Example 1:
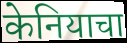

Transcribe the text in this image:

केनियाचा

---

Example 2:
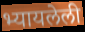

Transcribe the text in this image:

भ्यायलेली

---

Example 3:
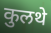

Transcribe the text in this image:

कुलथे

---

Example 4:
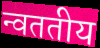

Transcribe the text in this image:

न्वततीय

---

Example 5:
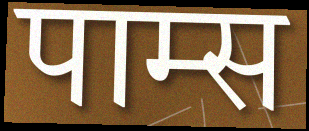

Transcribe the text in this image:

पाम्स